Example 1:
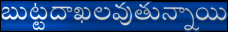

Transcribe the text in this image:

బుట్టదాఖలవుతున్నాయి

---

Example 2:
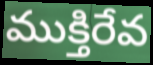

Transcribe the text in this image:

ముక్తిరేవ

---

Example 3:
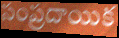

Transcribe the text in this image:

సంప్రదాయిక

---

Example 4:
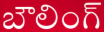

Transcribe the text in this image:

బౌలింగ్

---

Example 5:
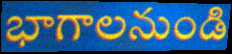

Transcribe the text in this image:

భాగాలనుండి